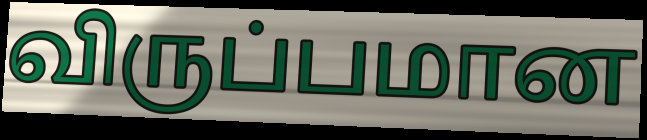
விருப்பமான